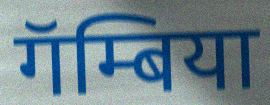
गॅम्बिया